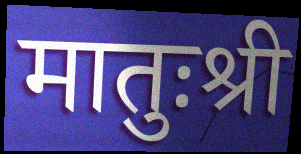
मातुःश्री